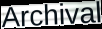
Archival